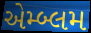
એમ્બ્લમ